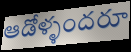
ఆడోళ్ళందరూ